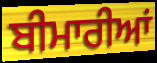
ਬੀਮਾਰੀਆਂ